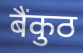
बैंकुठ